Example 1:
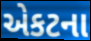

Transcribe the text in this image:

એકટના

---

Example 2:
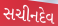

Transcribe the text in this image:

સચીનદેવ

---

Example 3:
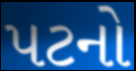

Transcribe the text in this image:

પટનો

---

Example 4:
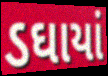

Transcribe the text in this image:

ડઘાયાં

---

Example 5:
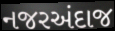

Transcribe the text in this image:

નજરઅંદાજ